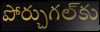
పోర్చుగల్‌కు